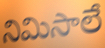
నిమిసాలే